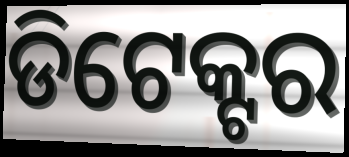
ଡିଟେକ୍ଟର